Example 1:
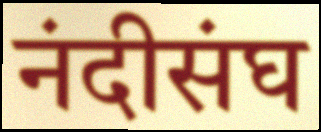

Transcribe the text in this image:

नंदीसंघ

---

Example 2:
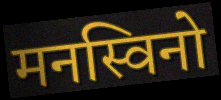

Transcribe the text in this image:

मनस्विनो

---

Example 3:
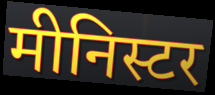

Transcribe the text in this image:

मीनिस्टर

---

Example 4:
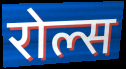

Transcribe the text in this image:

रोल्स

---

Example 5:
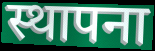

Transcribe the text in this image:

स्‍थापना